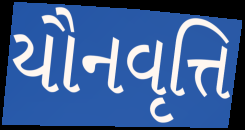
યૌનવૃત્તિ